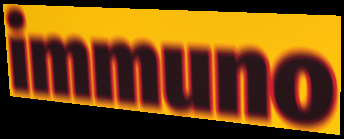
immuno